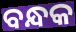
ବନ୍ଧକ